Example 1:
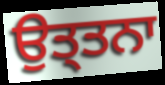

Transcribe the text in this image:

ਉਤ੍ਤਨਾ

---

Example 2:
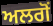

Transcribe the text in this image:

ਅਲਗੋਂ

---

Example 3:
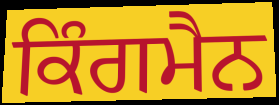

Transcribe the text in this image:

ਕਿੰਗਮੈਨ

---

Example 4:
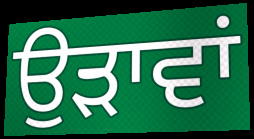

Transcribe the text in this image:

ਉੜਾਵਾਂ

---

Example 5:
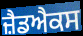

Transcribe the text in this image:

ਜ਼ੈਡਐਕਸ